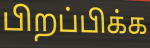
பிறப்பிக்க